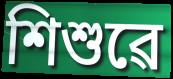
শিশুৱে